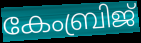
കേംബ്രിജ്